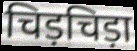
चिड़चिड़ा